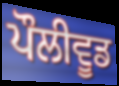
ਪੌਲੀਵੂਡ